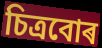
চিত্ৰবোৰ